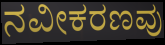
ನವೀಕರಣವು